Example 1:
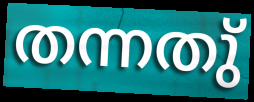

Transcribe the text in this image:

തന്നതു്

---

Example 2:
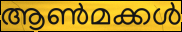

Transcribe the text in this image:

ആൺമക്കൾ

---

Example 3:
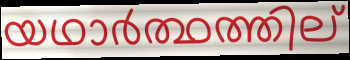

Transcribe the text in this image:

യഥാർത്ഥത്തില്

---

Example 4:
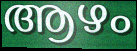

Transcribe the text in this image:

ആഴം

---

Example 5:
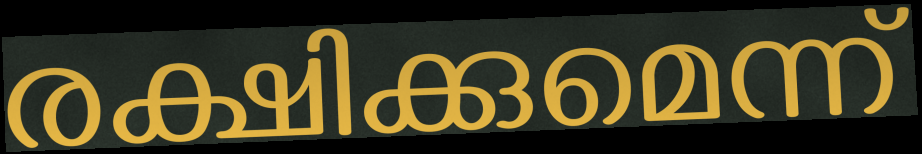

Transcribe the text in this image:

രക്ഷിക്കുമെന്ന്